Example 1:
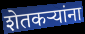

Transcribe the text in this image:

शेतकर्‍यांना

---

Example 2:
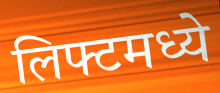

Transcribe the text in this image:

लिफ्टमध्ये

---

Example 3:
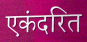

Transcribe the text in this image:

एकंदरित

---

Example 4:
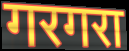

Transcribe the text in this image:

गरगरा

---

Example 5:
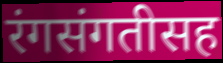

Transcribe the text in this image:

रंगसंगतीसह